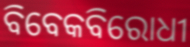
ବିବେକବିରୋଧୀ